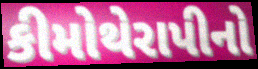
કીમોથેરાપીનો